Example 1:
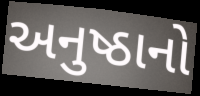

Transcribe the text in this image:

અનુષ્ઠાનો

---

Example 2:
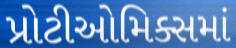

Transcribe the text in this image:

પ્રોટીઓમિક્સમાં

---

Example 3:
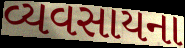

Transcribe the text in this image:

વ્યવસાયના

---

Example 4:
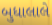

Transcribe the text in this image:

બુધાલાલે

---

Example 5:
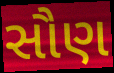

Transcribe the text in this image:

સૌણ